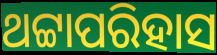
ଥଟ୍ଟାପରିହାସ